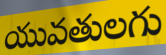
యువతులగు